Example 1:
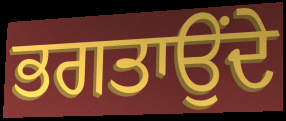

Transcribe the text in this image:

ਭਗਤਾਉਂਦੇ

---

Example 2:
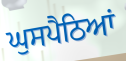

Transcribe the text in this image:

ਘੁਸਪੈਠਿਆਂ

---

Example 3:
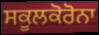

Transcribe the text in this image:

ਸਕੂਲਕੋਰੋਨਾ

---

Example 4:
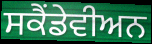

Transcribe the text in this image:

ਸਕੈਂਡੇਵੀਅਨ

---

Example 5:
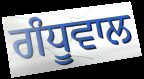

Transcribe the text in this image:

ਗੰਧੂਵਾਲ